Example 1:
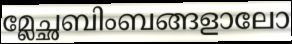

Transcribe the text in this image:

മ്ലേച്ഛബിംബങ്ങളാലോ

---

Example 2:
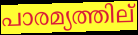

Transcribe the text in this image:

പാരമ്യത്തില്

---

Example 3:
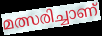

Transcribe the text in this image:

മത്സരിച്ചാണ്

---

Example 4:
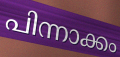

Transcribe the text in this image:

പിന്നാക്കം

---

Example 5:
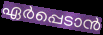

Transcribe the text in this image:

ഏർപ്പെടാൻ